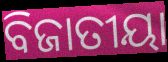
ବିଜାତୀୟା